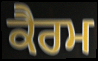
ਕੈਰਮ